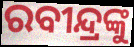
ରବୀନ୍ଦ୍ରଙ୍କୁ